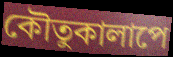
কৌতুকালাপে